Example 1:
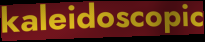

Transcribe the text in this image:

kaleidoscopic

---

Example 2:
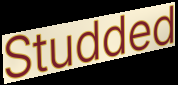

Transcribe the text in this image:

Studded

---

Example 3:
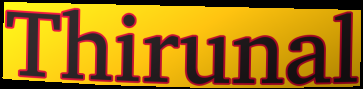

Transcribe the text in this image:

Thirunal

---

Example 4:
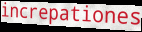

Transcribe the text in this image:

increpationes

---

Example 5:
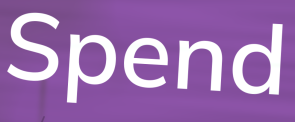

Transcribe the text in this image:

Spend